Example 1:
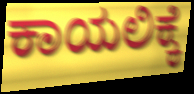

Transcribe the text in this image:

ಕಾಯಲಿಕ್ಕೆ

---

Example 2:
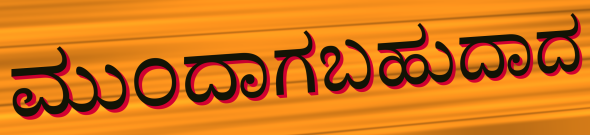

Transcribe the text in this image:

ಮುಂದಾಗಬಹುದಾದ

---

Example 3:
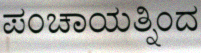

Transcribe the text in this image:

ಪಂಚಾಯತ್ನಿಂದ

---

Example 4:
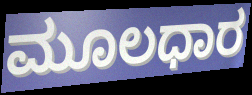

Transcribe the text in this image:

ಮೂಲಧಾರ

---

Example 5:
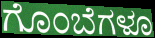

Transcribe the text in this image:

ಗೊಂಬೆಗಳೂ